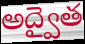
అద్వైత